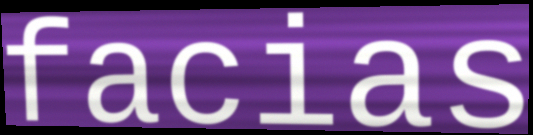
facias